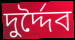
দুর্দ্দৈব